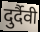
दुर्दैवी